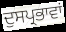
ਦੁਸਪ੍ਰਭਾਵਾਂ